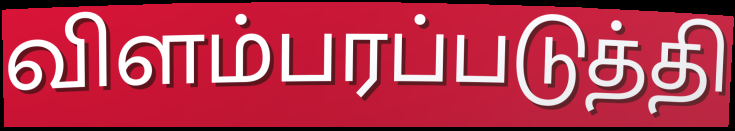
விளம்பரப்படுத்தி